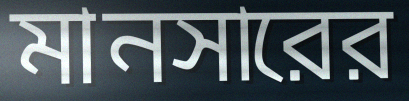
মানসারের